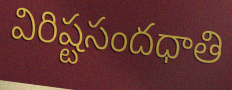
విరిష్టసందధాతి